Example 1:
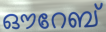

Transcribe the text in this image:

ഔറേബ്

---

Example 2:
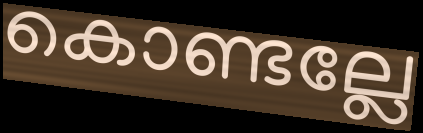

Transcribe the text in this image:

കൊണ്ടല്ലേ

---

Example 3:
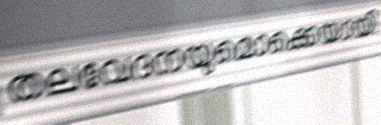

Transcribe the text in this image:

തലവേദനയുമൊക്കെയായി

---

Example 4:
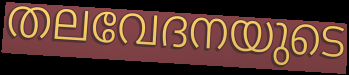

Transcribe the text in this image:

തലവേദനയുടെ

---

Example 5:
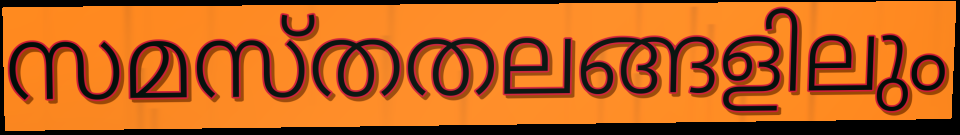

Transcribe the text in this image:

സമസ്തതലങ്ങളിലും